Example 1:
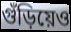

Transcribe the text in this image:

গুঁড়িয়েও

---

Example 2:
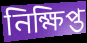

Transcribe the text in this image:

নিক্ষিপ্ত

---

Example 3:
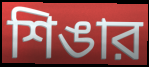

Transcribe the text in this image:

শিঙার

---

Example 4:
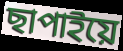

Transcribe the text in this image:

ছাপাইয়ে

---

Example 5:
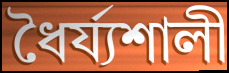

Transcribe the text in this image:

ধৈর্য্যশালী